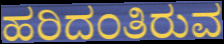
ಹರಿದಂತಿರುವ